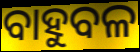
ବାହୁବଳ